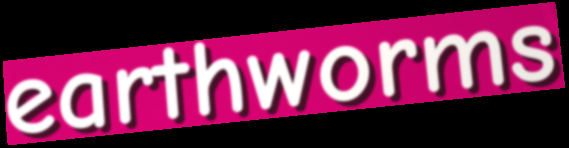
earthworms